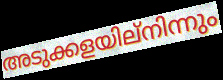
അടുക്കളയില്നിന്നും